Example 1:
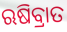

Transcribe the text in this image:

ଋଷିବ୍ରାତ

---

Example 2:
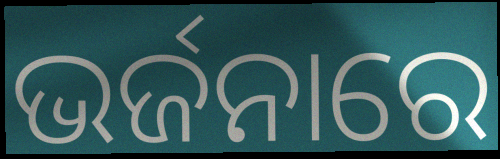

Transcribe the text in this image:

ଭର୍ଜନାରେ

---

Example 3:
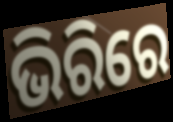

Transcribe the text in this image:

ଭିରିରେ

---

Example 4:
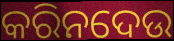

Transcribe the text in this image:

କରିନଦେଉ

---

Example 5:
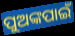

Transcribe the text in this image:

ପୁଅଙ୍କପାଇଁ